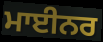
ਮਾਈਨਰ